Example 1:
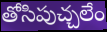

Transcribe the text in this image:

తోసిపుచ్చలేం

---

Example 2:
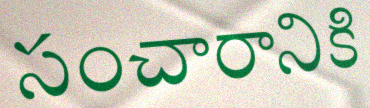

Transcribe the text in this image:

సంచారానికి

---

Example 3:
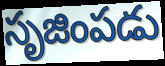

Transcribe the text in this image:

సృజింపడు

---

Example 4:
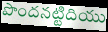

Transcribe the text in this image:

పొందనట్టిదియు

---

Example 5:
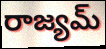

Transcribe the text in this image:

రాజ్యమ్